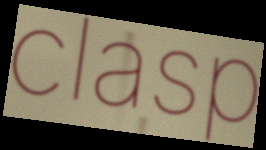
clasp